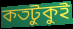
কতটুকুই